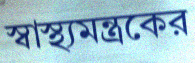
স্বাস্থ্যমন্ত্রকের